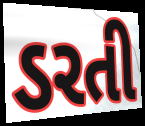
ડરતી